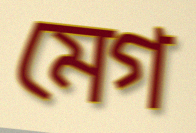
মেগ